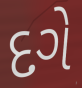
દગે